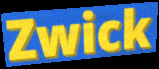
Zwick